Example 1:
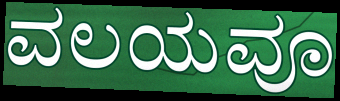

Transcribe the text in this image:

ವಲಯವೂ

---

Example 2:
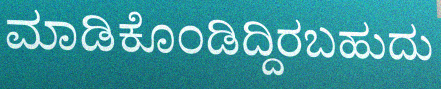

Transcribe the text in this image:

ಮಾಡಿಕೊಂಡಿದ್ದಿರಬಹುದು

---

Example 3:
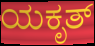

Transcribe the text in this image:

ಯಕೃತ್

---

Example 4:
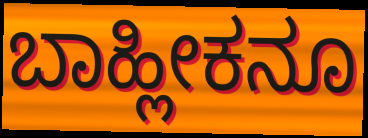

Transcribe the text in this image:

ಬಾಹ್ಲೀಕನೂ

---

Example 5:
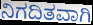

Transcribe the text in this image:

ನಿಗದಿತವಾಗಿ